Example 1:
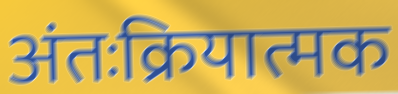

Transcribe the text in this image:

अंतःक्रियात्मक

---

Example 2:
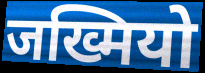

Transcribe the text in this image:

जख्मियो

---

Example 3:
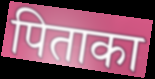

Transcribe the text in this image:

पिताका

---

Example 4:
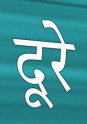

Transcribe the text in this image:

दूरे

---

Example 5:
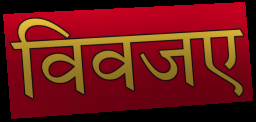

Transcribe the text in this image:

विवजए